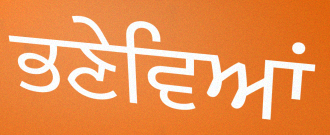
ਭਣੇਵਿਆਂ